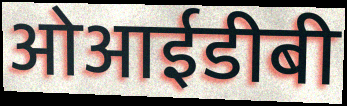
ओआईडीबी